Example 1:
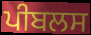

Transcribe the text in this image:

ਪੀਬਲਸ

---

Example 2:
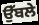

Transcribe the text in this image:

ਉੱਬਲੇ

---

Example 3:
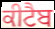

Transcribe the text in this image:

ਕੀਟੈਬ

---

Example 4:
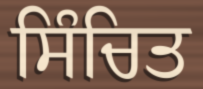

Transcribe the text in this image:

ਸਿੰਚਿਤ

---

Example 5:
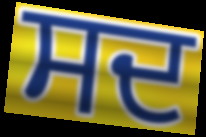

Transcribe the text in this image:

ਸਦ